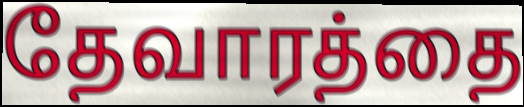
தேவாரத்தை